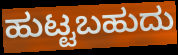
ಹುಟ್ಟಬಹುದು